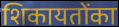
शिकायतोंका